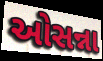
ઓસન્ના